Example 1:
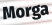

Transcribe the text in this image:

Morga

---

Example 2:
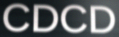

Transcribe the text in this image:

CDCD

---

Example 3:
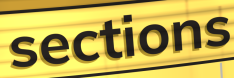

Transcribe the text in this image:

sections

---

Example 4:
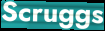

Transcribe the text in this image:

Scruggs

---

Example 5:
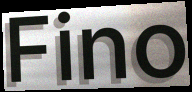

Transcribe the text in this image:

Fino